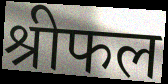
श्रीफल